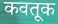
कवतूक